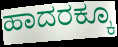
ಹಾದರಕ್ಕೂ